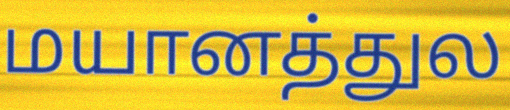
மயானத்துல